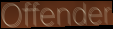
Offender